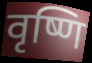
वृष्णि